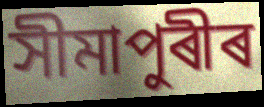
সীমাপুৰীৰ